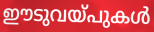
ഈടുവയ്പുകൾ